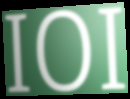
IOI